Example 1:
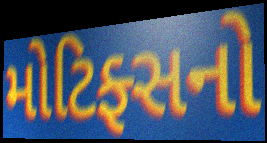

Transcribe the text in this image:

મોટિફ્સનો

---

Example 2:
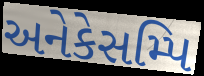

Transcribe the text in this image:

અનેકેસમ્પિ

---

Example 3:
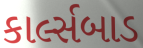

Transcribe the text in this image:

કાર્લ્સબાડ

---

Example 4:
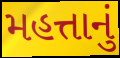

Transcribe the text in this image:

મહત્તાનું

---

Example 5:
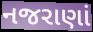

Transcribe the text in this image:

નજરાણાં